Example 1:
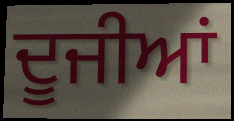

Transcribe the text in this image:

ਦੂਜੀਆਂ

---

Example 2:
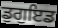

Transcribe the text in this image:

ਡੁਗੁਇਡ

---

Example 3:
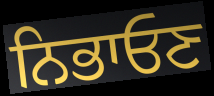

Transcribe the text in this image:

ਨਿਭਾਓਣ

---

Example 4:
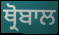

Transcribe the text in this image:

ਥ੍ਰੋਬਾਲ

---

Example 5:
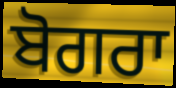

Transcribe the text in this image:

ਬੋਗਰਾ